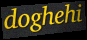
doghehi